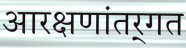
आरक्षणांतर्गत